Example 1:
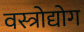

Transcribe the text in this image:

वस्त्रोद्योग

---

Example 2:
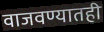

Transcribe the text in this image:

वाजवण्यातही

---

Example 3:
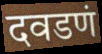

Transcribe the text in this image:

दवडणं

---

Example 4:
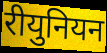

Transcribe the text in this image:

रीयुनियन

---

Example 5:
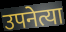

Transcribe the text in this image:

उपनेत्या